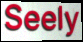
Seely